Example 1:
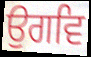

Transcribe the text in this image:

ਉਗਵਿ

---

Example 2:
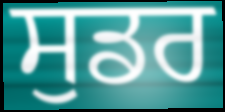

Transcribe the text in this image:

ਸੁਡਰ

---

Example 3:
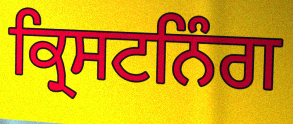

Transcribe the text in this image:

ਕ੍ਰਿਸਟਨਿੰਗ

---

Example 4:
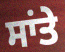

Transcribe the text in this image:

ਸਾਂਤੇ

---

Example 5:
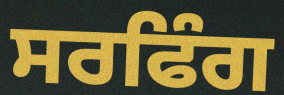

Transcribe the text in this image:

ਸਰਫਿੰਗ